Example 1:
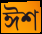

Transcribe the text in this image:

ঈশ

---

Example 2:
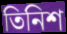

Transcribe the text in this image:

তিনিশ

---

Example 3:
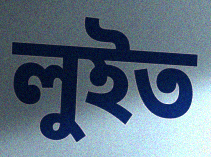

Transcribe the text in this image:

লুইত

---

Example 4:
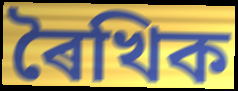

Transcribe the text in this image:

ৰৈখিক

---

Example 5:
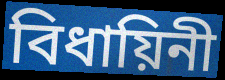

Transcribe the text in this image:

বিধায়িনী